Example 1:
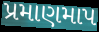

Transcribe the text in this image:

પ્રમાણમાપ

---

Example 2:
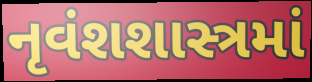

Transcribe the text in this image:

નૃવંશશાસ્ત્રમાં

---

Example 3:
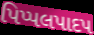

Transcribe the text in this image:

પિપ્પલપાદપ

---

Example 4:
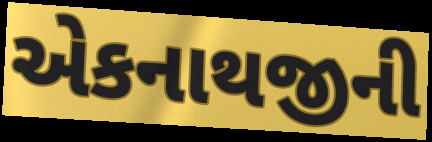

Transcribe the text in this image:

એકનાથજીની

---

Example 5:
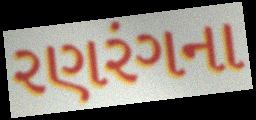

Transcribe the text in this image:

રણરંગના